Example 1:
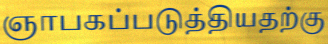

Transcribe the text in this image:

ஞாபகப்படுத்தியதற்கு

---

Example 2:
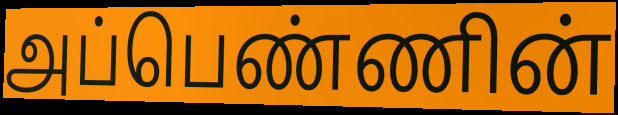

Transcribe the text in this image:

அப்பெண்ணின்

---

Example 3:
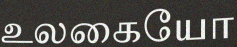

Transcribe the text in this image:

உலகையோ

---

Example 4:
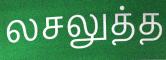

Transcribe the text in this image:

லசலுத்த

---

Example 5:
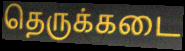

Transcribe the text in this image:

தெருக்கடை